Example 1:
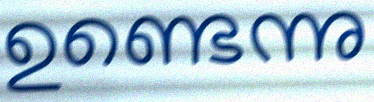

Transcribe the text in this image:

ഉണ്ടെന്നു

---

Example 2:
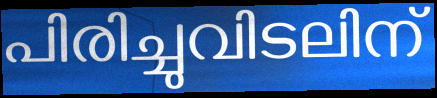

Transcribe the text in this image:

പിരിച്ചുവിടലിന്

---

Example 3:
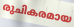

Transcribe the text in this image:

രുചികരമായ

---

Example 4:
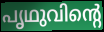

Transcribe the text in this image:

പൃഥുവിന്റെ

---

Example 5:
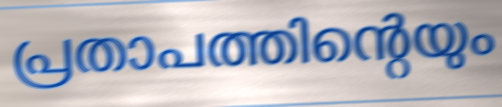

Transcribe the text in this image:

പ്രതാപത്തിന്റെയും